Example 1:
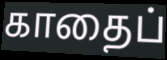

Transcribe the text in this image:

காதைப்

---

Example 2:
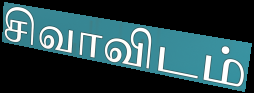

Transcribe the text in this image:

சிவாவிடம்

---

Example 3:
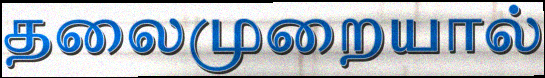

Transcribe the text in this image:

தலைமுறையால்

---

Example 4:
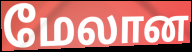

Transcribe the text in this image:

மேலான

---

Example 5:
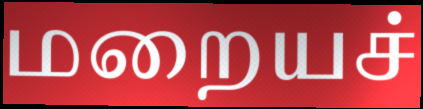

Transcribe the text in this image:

மறையச்